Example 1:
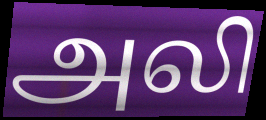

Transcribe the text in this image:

அலி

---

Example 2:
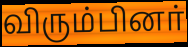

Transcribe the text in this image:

விரும்பினர்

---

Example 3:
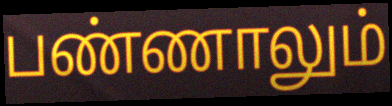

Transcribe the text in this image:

பண்ணாலும்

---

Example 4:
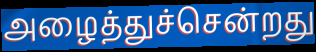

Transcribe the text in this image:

அழைத்துச்சென்றது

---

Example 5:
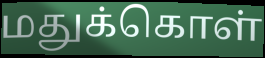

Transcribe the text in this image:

மதுக்கொள்